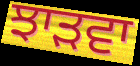
ਝਾੜਵਾ